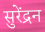
सुरेंद्रन